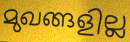
മുഖങ്ങളില്ല